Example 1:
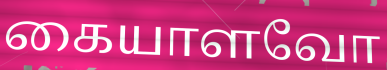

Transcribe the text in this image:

கையாளவோ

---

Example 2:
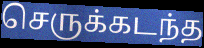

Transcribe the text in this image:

செருக்கடந்த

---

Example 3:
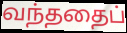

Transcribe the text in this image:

வந்ததைப்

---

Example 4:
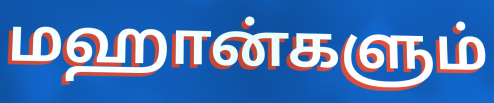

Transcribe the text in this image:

மஹான்களும்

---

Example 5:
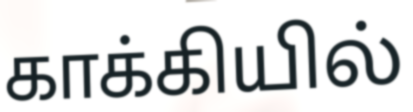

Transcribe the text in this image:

காக்கியில்